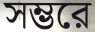
সম্ভরে